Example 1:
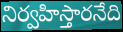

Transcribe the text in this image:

నిర్వహిస్తారనేది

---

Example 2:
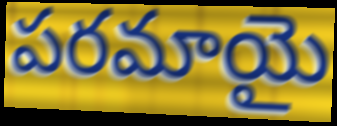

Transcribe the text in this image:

పరమాయై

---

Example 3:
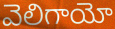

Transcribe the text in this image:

వెలిగాయో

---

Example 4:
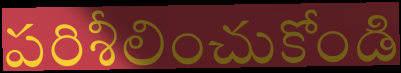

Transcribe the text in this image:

పరిశీలించుకోండి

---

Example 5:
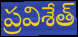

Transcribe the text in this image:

ప్రవిశేత్